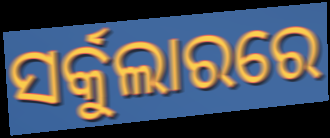
ସର୍କୁଲାରରେ